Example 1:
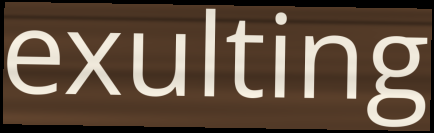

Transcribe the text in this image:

exulting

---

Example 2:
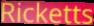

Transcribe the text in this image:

Ricketts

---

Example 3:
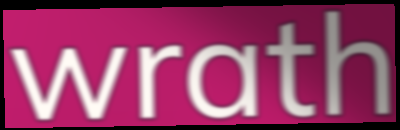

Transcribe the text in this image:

wrath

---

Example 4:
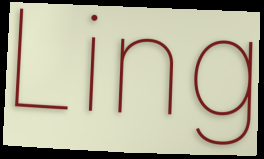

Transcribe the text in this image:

Ling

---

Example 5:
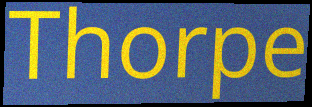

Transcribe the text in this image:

Thorpe